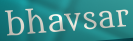
bhavsar